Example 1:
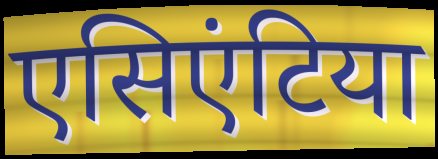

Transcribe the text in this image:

एसिएंटिया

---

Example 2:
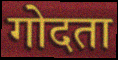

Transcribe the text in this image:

गोदता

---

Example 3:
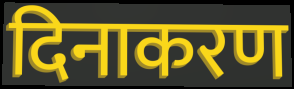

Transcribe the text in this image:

दिनाकरण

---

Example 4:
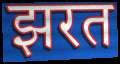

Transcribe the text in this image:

झरत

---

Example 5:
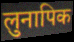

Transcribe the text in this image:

लुनापिक